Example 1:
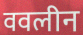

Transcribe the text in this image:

ववलीन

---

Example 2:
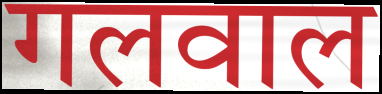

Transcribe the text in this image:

गलवाल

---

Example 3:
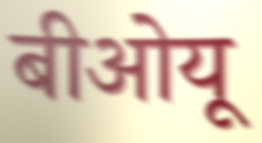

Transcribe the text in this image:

बीओयू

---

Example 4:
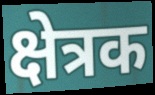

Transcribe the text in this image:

क्षेत्रक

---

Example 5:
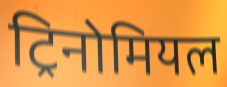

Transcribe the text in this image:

ट्रिनोमियल